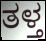
ತಳ್ತ